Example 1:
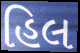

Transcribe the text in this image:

હિલ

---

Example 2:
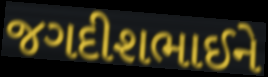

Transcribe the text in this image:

જગદીશભાઈને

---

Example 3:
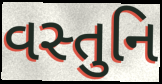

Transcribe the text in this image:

વસ્તુનિ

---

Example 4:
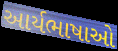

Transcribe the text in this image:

આર્યભાષાઓ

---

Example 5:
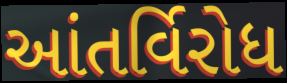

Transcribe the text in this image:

આંતર્વિરોધ